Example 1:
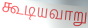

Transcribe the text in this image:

கூடியவாறு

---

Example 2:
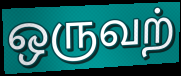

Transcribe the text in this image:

ஒருவற்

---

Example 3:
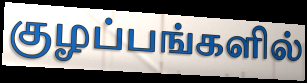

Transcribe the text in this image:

குழப்பங்களில்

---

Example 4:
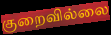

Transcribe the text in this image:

குறைவில்லை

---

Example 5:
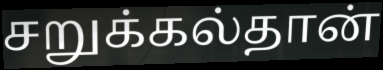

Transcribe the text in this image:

சறுக்கல்தான்